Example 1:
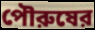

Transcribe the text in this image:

পৌরুষের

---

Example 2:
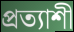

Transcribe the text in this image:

প্রত্যাশী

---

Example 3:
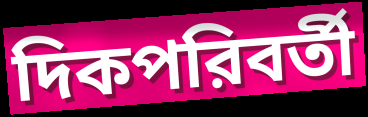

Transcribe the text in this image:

দিকপরিবর্তী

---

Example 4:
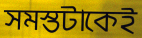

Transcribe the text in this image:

সমস্তটাকেই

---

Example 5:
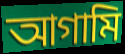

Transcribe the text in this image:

আগামি